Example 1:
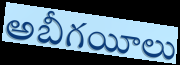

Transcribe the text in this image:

అబీగయీలు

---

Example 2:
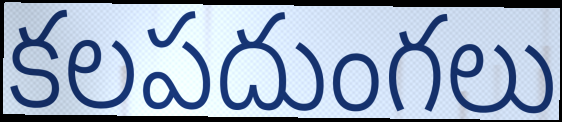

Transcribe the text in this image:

కలపదుంగలు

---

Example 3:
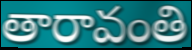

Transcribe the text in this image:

తారావంతి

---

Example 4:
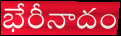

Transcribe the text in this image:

భేరీనాదం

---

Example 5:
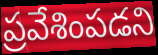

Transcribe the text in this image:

ప్రవేశింపడని